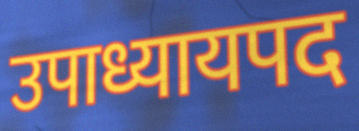
उपाध्यायपद